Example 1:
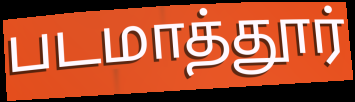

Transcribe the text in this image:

படமாத்தூர்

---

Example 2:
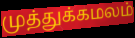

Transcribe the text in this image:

முத்துக்கமலம்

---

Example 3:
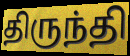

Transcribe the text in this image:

திருந்தி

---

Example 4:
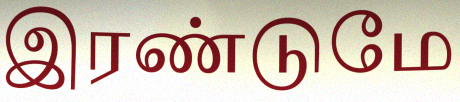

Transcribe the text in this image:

இரண்டுமே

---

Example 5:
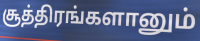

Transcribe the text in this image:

சூத்திரங்களானும்